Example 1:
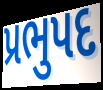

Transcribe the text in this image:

પ્રભુપદ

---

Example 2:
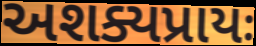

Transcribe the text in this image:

અશક્યપ્રાયઃ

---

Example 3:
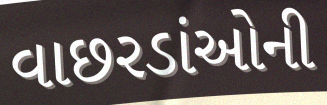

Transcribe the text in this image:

વાછરડાંઓની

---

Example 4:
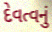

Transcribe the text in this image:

દેવત્વનું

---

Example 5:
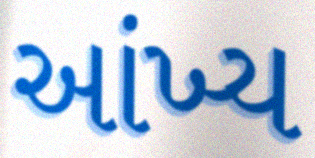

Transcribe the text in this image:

આંખ્ય